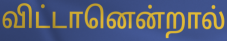
விட்டானென்றால்